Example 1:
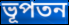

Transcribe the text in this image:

ভূপতন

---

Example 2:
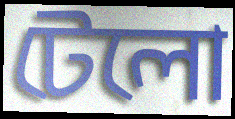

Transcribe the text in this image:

টেলো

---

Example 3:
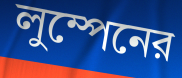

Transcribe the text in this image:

লুম্পেনের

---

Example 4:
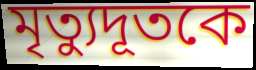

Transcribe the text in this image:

মৃত্যুদূতকে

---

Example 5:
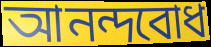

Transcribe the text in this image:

আনন্দবোধ